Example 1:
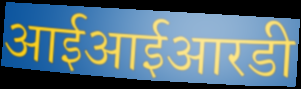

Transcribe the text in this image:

आईआईआरडी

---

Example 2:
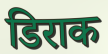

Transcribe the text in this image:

डिराक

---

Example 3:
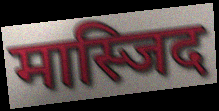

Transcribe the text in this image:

मास्जिद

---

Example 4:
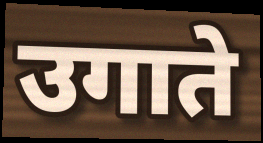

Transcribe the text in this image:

उगाते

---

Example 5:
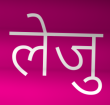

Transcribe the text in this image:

लेजु